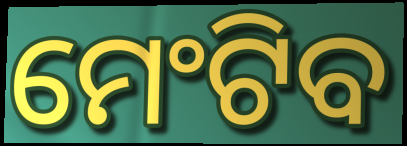
ମେଂଟିବ